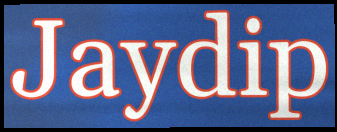
Jaydip